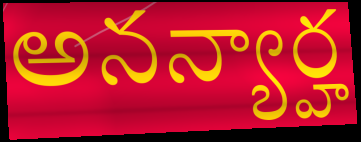
అనన్యార్హ